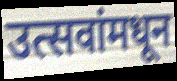
उत्सवांमधून